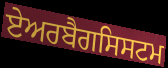
ਏਅਰਬੈਗਸਿਸਟਮ